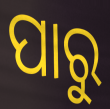
ପାରୁ